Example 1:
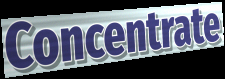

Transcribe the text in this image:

Concentrate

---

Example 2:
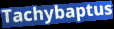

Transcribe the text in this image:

Tachybaptus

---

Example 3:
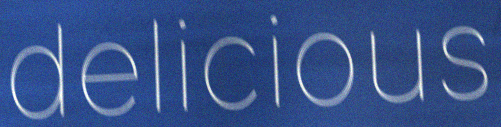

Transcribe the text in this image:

delicious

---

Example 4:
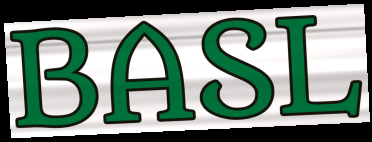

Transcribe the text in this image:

BASL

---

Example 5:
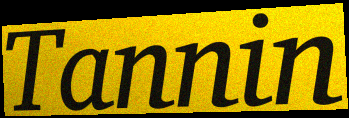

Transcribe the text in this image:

Tannin